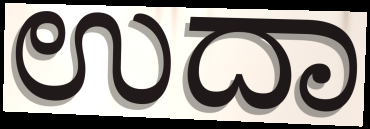
ಉದಾ